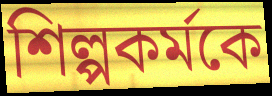
শিল্পকর্মকে